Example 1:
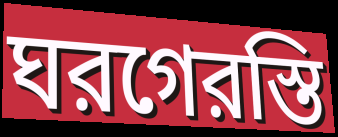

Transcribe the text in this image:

ঘরগেরস্তি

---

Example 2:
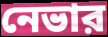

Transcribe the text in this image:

নেভার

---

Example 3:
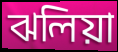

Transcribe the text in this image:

ঝলিয়া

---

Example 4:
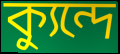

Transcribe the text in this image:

ক্যুন্দে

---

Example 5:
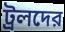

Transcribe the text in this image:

ট্রলদের